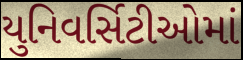
યુનિવર્સિટીઓમાં